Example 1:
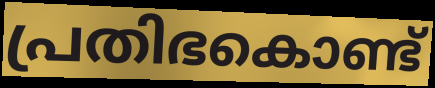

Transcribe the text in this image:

പ്രതിഭകൊണ്ട്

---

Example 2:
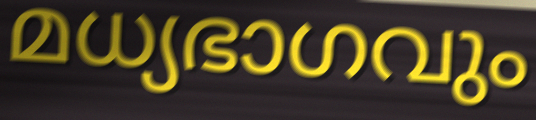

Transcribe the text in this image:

മധ്യഭാഗവും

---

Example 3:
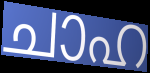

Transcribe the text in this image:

ചാഹ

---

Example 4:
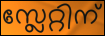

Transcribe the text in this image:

സ്ലേറ്റിന്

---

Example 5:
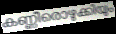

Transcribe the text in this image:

കണ്ണീരൊഴുക്കിയും